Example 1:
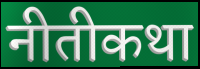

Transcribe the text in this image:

नीतीकथा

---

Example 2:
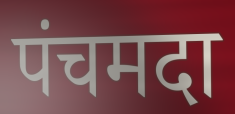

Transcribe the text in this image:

पंचमदा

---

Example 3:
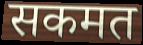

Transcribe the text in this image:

सकमत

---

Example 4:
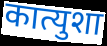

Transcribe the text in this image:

कात्युशा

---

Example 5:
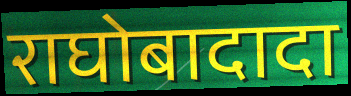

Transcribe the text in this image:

राघोबादादा